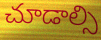
చూడాల్సి